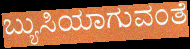
ಬ್ಯುಸಿಯಾಗುವಂತೆ